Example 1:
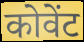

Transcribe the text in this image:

कोवेंट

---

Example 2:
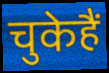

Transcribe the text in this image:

चुकेहैं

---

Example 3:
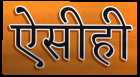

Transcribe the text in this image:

ऐसीही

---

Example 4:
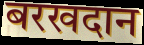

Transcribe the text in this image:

बरखदान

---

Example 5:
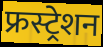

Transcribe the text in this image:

फ्रस्‍ट्रेशन